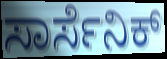
ಸಾರ್ಸೆನಿಕ್